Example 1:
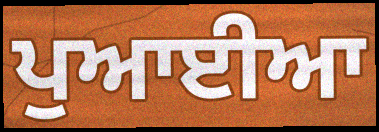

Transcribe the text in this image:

ਪੁਆਈਆ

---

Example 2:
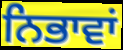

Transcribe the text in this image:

ਨਿਭਾਵਾਂ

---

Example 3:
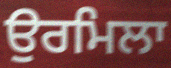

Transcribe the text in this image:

ਉਰਮਿਲਾ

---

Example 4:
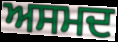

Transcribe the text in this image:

ਅਸਮਦ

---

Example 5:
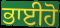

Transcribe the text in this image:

ਭਾਈਹੋ